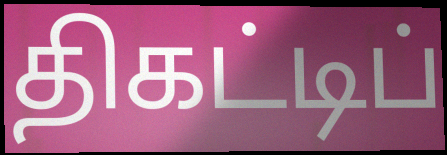
திகட்டிப்